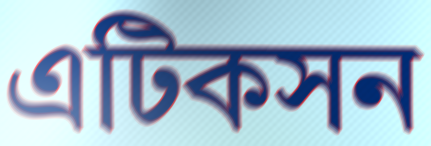
এটিকসন